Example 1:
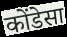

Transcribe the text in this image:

कोंडेसा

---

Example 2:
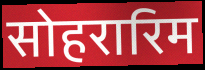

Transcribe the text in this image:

सोहरारिम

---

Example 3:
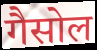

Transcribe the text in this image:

गैसोल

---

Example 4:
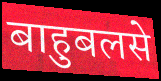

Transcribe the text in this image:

बाहुबलसे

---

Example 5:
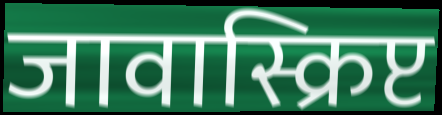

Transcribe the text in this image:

जावास्क्रिप्ट